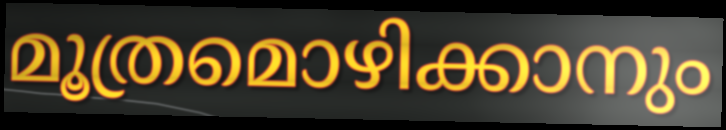
മൂത്രമൊഴിക്കാനും